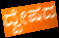
ದ್ವೇಷದ